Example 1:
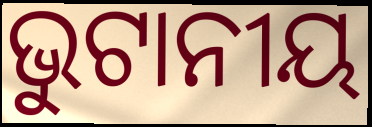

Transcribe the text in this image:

ଭୁଟାନୀୟ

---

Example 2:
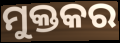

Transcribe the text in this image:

ମୁକ୍ତକର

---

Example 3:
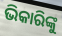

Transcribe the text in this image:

ଭିକାରିଙ୍କୁ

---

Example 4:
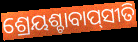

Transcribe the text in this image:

ଶ୍ରେୟଶ୍ଚାବାପ୍‌ସୀତି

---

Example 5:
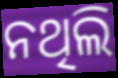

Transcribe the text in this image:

ନଥିଲି